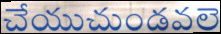
చేయుచుండవలె